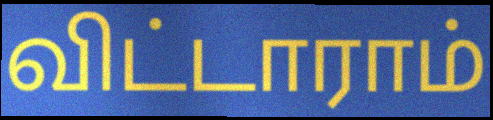
விட்டாராம்